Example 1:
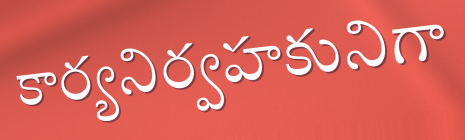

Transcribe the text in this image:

కార్యనిర్వహకునిగా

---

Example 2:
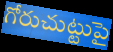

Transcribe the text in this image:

గోరుచుట్టుపై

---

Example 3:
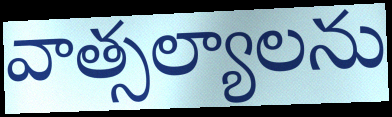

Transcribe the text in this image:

వాత్సల్యాలను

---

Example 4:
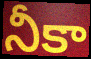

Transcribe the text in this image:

నీకా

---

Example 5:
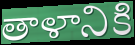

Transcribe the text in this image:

తాళానికి